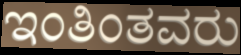
ಇಂತಿಂತವರು